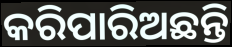
କରିପାରିଅଛନ୍ତି